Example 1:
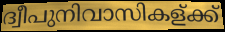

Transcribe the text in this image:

ദ്വീപുനിവാസികള്ക്ക്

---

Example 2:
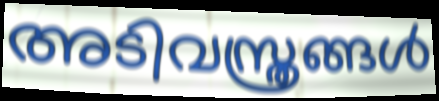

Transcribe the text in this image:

അടിവസ്ത്രങ്ങൾ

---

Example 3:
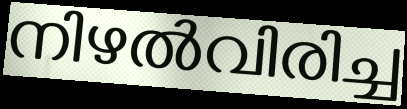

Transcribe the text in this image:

നിഴൽവിരിച്ച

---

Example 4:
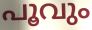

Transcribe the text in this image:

പൂവും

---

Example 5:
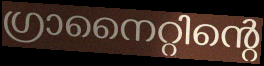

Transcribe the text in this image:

ഗ്രാനൈറ്റിന്റെ